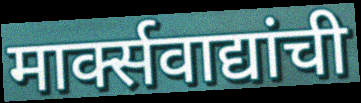
मार्क्सवाद्यांची